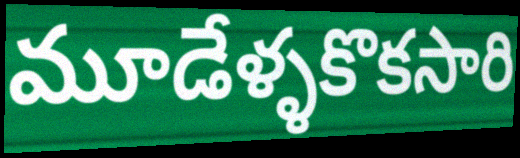
మూడేళ్ళకొకసారి